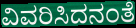
ವಿವರಿಸಿದನಂತೆ